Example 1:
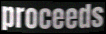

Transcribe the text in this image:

proceeds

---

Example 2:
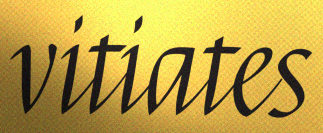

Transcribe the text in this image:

vitiates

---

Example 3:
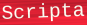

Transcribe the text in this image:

Scripta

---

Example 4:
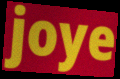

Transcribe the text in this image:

joye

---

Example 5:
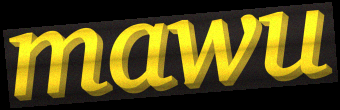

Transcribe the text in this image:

mawu